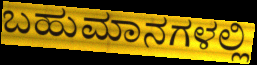
ಬಹುಮಾನಗಳಲ್ಲಿ